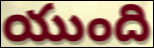
యుంది